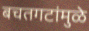
बचतगटांमुळे